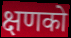
क्षणको